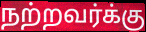
நற்றவர்க்கு